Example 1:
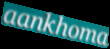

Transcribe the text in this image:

aankhoma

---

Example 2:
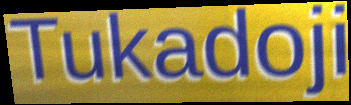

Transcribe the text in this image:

Tukadoji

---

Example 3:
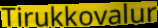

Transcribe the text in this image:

Tirukkovalur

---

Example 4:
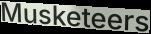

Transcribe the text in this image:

Musketeers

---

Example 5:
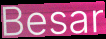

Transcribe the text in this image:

Besar